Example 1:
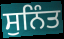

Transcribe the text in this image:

ਸੁਨਿੰਤ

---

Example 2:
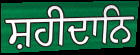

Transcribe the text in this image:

ਸ਼ਹੀਦਾਨਿ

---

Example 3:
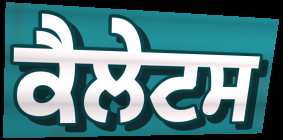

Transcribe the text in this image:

ਕੈਲੇਟਸ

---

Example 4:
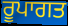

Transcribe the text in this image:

ਰੂਪਾਗਤ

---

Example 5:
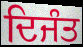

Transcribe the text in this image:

ਦਿਜੰਤ